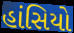
હાંસિયો